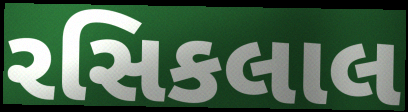
રસિકલાલ